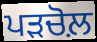
ਪੜਚੋਲ਼